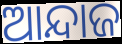
ଆନ୍ଦାଜ